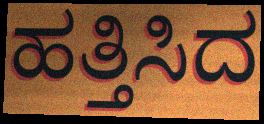
ಹತ್ತಿಸಿದ